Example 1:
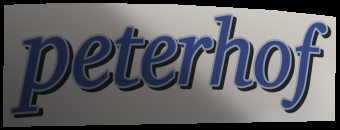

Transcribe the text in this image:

peterhof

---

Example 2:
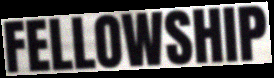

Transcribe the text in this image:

FELLOWSHIP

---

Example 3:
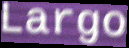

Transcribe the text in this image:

Largo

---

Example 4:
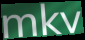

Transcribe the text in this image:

mkv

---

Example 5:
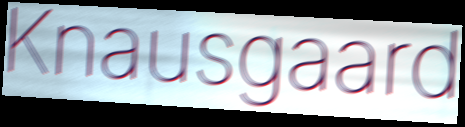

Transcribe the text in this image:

Knausgaard